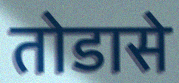
तोडासे